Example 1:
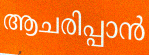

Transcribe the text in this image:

ആചരിപ്പാൻ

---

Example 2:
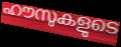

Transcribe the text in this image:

ഹൗസുകളുടെ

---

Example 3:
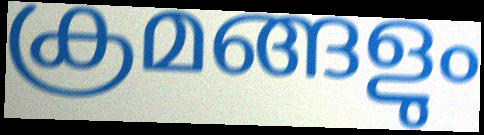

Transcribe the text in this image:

ക്രമങ്ങളും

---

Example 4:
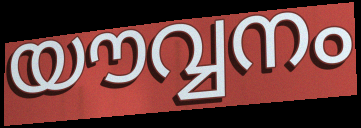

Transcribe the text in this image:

യൗവ്വനം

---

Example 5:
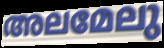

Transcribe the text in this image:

അലമേലു